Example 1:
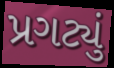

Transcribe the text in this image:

પ્રગટ્યું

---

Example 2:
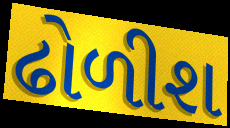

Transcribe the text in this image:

ઢોળીશ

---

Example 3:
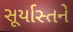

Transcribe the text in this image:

સૂર્યાસ્તને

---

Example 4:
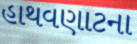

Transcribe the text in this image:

હાથવણાટના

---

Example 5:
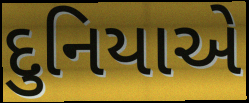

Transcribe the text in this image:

દુનિયાએ